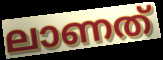
ലാണത്